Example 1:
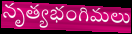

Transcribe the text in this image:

నృత్యభంగిమలు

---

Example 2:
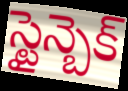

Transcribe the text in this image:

స్టైన్బెక్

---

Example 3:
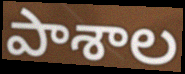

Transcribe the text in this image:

పాశాల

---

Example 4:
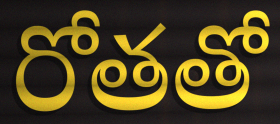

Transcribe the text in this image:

రోతతో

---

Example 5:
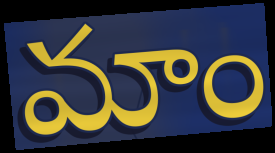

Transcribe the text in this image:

మాం